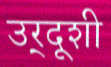
उर्दूशी